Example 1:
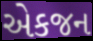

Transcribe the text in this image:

એકજન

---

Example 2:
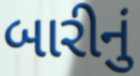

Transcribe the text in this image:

બારીનું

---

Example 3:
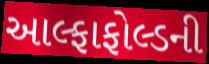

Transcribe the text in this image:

આલ્ફાફોલ્ડની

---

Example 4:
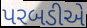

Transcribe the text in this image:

પરબડીએ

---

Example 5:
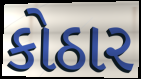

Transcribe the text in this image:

કોઠાર